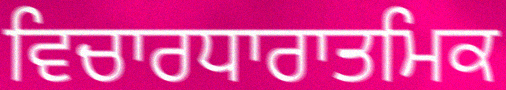
ਵਿਚਾਰਧਾਰਾਤਮਿਕ